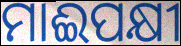
ମାଈପକ୍ଷୀ